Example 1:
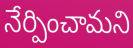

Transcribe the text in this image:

నేర్పించామని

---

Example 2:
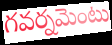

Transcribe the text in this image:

గవర్నమెంటు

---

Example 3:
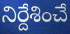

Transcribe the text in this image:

నిర్దేశించే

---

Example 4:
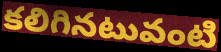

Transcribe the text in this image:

కలిగినటువంటి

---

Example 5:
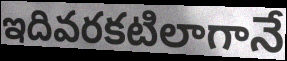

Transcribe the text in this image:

ఇదివరకటిలాగానే